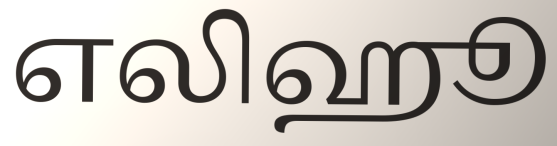
எலிஹூ